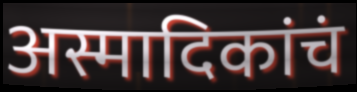
अस्मादिकांचं